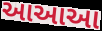
આઆઆ